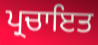
ਪ੍ਰਚਾਇਤ